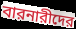
বারনারীদের